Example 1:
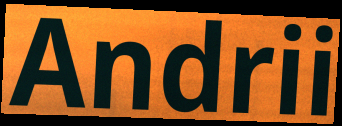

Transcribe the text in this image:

Andrii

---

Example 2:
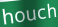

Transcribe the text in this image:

houch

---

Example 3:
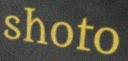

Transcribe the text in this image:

shoto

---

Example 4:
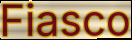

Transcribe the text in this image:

Fiasco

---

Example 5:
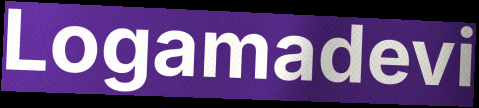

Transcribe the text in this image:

Logamadevi